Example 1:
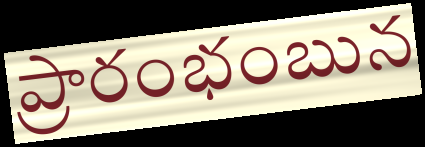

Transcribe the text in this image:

ప్రారంభంబున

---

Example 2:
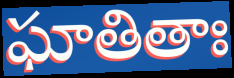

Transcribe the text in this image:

ఘాతితాః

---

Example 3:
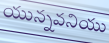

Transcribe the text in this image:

యున్నవనియు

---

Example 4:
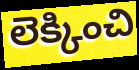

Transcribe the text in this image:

లెక్కించి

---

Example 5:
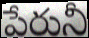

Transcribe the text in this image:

పేరునీ